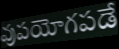
వుపయోగపడే